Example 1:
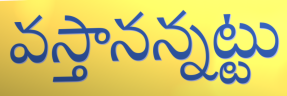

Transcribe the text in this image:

వస్తానన్నట్టు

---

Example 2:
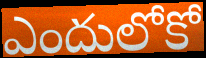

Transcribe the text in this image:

ఎందులోకో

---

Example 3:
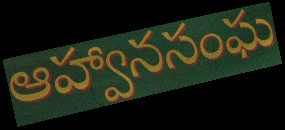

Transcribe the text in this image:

ఆహ్వానసంఘ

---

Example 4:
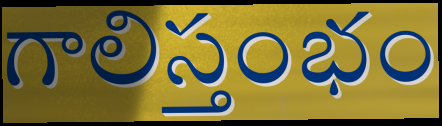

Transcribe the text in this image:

గాలిస్తంభం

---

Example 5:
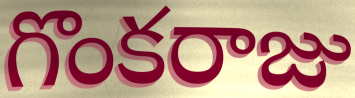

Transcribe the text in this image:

గొంకరాజు